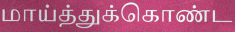
மாய்த்துக்கொண்ட